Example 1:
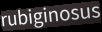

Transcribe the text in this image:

rubiginosus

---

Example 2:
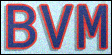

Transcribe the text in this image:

BVM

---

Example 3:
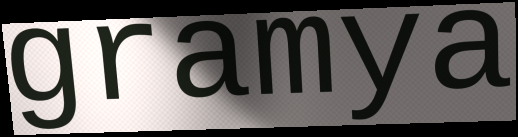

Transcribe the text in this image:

gramya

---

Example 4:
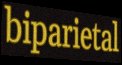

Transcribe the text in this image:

biparietal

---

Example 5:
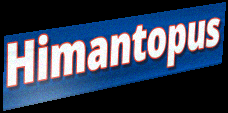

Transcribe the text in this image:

Himantopus